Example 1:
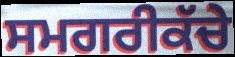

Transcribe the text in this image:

ਸਮਗਰੀਕੱਚੇ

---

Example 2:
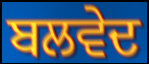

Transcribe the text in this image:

ਬਲਵੇਦ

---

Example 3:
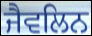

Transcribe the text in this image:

ਜੈਵਲਿਨ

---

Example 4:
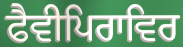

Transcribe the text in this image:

ਫੈਵੀਪਿਰਾਵਿਰ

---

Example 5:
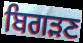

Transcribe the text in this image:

ਬਿਗੜਣ